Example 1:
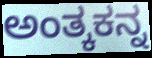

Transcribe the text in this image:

ಅಂತ್ಕಕನ್ನ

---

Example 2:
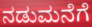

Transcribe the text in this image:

ನಡುಮನೆಗೆ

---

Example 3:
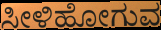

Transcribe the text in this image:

ಸೀಳಿಹೋಗುವ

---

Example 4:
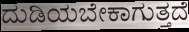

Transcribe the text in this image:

ದುಡಿಯಬೇಕಾಗುತ್ತದೆ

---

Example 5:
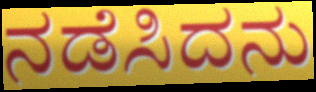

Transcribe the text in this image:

ನಡೆಸಿದನು